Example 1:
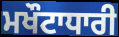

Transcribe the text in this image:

ਮਖੌਟਾਧਾਰੀ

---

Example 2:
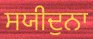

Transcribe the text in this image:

ਸਯੀਦੁਨਾ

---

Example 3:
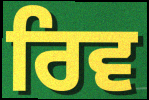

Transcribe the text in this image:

ਰਿਵ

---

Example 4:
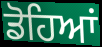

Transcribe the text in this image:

ਡੋਹਿਆਂ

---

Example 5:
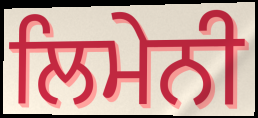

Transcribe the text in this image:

ਲਿਮੇਨੀ